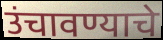
उंचावण्याचे